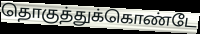
தொகுத்துக்கொண்டே